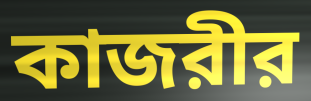
কাজরীর